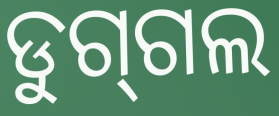
ଡୁଗ୍‌ଗଲ